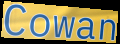
Cowan